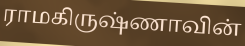
ராமகிருஷ்ணாவின்